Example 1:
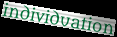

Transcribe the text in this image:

individuation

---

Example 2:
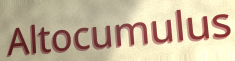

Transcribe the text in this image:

Altocumulus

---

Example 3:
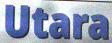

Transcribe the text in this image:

Utara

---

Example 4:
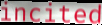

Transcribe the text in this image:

incited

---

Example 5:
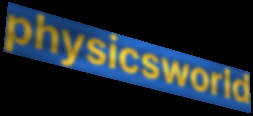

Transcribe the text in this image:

physicsworld